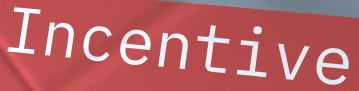
Incentive